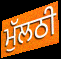
ਮੁੱਲਠੀ